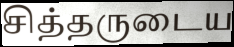
சித்தருடைய